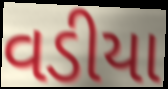
વડીયા